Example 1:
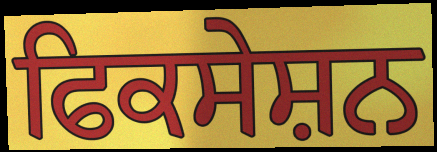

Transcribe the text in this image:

ਫਿਕਸੇਸ਼ਨ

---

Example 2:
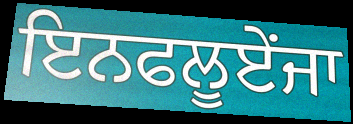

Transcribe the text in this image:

ਇਨਫਲੂਏਂਜਾ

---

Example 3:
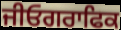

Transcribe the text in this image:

ਜੀਓਗਰਾਫਿਕ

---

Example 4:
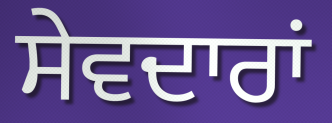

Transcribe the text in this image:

ਸੇਵਦਾਰਾਂ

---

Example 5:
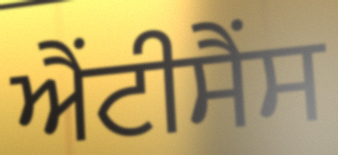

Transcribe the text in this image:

ਐਂਟੀਸੈਂਸ